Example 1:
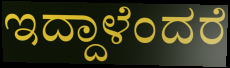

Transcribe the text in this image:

ಇದ್ದಾಳೆಂದರೆ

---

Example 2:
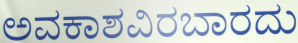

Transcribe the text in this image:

ಅವಕಾಶವಿರಬಾರದು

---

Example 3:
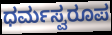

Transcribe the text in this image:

ಧರ್ಮಸ್ವರೂಪ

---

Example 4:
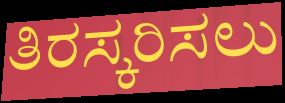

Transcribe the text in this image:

ತಿರಸ್ಕರಿಸಲು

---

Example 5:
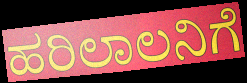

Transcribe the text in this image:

ಹರಿಲಾಲನಿಗೆ